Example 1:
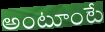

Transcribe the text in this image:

అంటూంటే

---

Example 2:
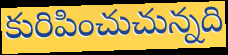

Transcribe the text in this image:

కురిపించుచున్నది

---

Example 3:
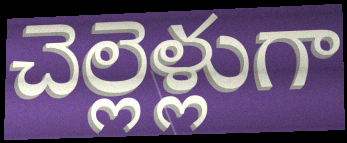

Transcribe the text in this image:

చెల్లెళ్లుగా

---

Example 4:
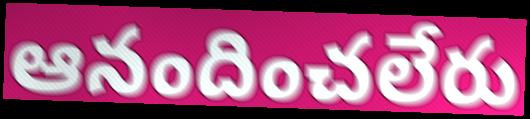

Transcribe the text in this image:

ఆనందించలేరు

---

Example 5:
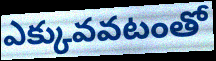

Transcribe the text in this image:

ఎక్కువవటంతో